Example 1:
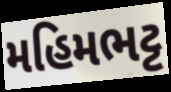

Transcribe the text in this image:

મહિમભટ્ટ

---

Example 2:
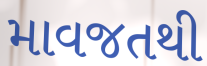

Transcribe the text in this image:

માવજતથી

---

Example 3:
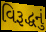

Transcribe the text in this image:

વિરૂદ્ધનું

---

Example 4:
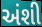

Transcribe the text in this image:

અંશી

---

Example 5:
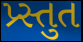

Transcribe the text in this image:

પ્ર્સ્તુત